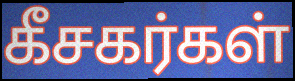
கீசகர்கள்